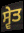
ਸ੍ਵੇਤ